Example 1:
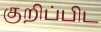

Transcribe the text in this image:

குறிப்பிட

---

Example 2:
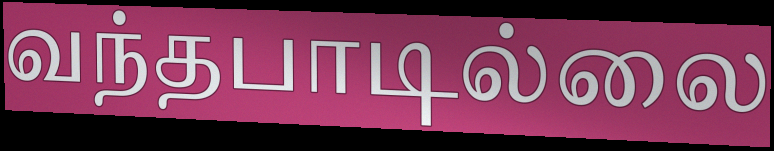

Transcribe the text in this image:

வந்தபாடில்லை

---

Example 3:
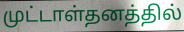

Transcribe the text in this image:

முட்டாள்தனத்தில்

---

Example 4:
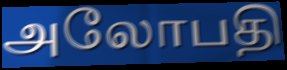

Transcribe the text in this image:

அலோபதி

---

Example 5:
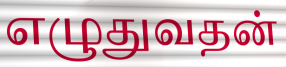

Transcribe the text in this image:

எழுதுவதன்